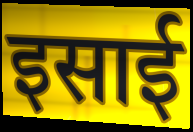
इसाई